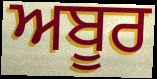
ਅਬੂਰ